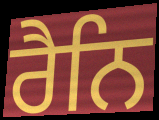
ਰੈਨਿ